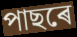
পাছৰে